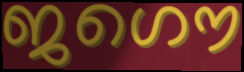
ജഗൌ